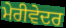
ਮੇਰੀਵੇਦਰ